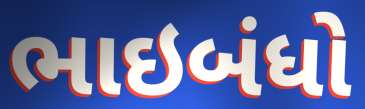
ભાઇબંધો